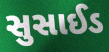
સુસાઈડ